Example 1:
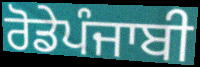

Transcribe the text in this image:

ਰੋਡੇਪੰਜਾਬੀ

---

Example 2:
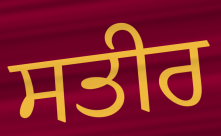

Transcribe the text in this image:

ਸਤੀਰ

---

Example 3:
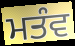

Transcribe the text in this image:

ਮਤੰਵ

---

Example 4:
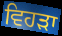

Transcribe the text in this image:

ਵਿਹੜਾ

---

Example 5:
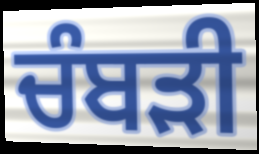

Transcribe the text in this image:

ਚੰਬੜੀ